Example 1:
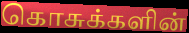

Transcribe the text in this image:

கொசுக்களின்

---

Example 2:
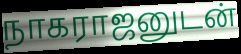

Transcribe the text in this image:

நாகராஜனுடன்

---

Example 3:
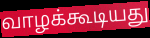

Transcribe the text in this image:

வாழக்கூடியது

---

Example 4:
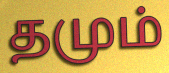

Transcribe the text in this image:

தமும்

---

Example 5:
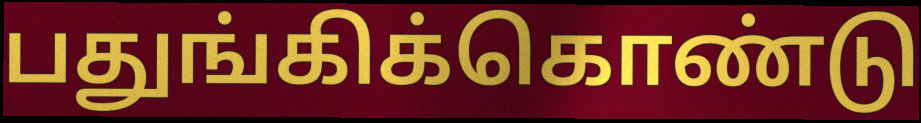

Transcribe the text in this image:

பதுங்கிக்கொண்டு